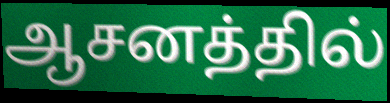
ஆசனத்தில்